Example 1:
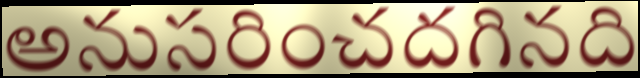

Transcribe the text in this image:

అనుసరించదగినది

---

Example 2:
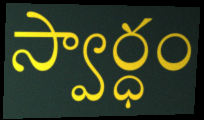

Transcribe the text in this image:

స్వార్ధం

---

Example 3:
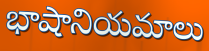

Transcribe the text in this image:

భాషానియమాలు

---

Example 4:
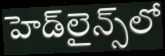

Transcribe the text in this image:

హెడ్‌లైన్స్‌లో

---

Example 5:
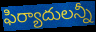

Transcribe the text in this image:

ఫిర్యాదులన్నీ